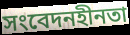
সংবেদনহীনতা